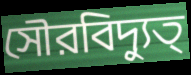
সৌরবিদ্যুত্